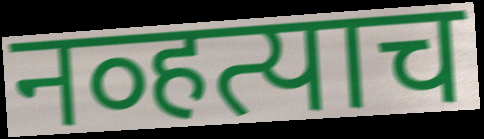
नव्हत्याच